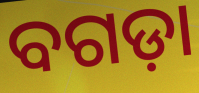
ବଗଡ଼ା